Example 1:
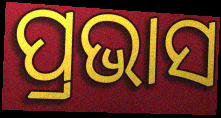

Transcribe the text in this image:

ପ୍ରଭାସ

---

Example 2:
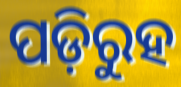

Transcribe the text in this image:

ପଡ଼ିରୁହ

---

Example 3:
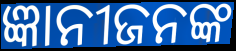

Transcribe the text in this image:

ଜ୍ଞାନୀଜନଙ୍କ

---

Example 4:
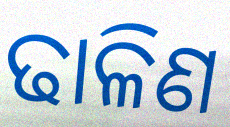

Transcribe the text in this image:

ଢାଳିଣ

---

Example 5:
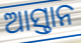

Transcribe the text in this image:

ଆସ୍ତାନ